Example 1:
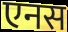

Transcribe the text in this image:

एनस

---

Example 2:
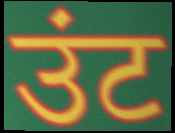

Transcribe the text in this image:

उंट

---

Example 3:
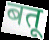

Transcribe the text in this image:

बतू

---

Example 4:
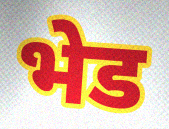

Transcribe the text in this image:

भेड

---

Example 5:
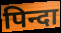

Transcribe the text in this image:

पिन्दा